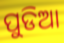
ପୁଡିଆ